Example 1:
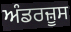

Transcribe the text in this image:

ਅੰਡਰਜ਼ੂਸ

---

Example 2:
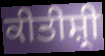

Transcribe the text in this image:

ਕੀਤੀਸ਼੍ਰੀ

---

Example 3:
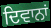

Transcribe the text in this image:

ਦਿਵਾਨਾਂ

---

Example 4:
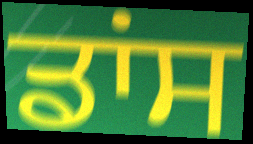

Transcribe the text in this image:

ਡਾਂਸ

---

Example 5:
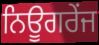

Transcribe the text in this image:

ਨਿਊਗਰੇਂਜ